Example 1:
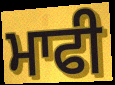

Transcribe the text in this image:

ਮਾਫੀ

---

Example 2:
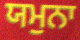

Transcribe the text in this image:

ਯਮੁਨਾ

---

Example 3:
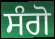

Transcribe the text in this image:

ਸੰਗੋ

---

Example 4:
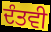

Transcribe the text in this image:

ਦੰਤਵੀ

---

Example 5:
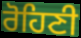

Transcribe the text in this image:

ਰੋਹਿਣੀ